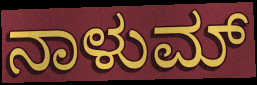
ನಾಳುಮ್